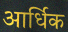
आर्धिक